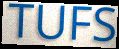
TUFS